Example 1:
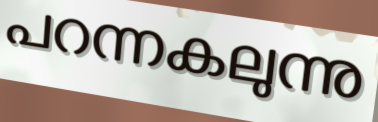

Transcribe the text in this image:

പറന്നകലുന്നു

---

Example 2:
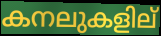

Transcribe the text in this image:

കനലുകളില്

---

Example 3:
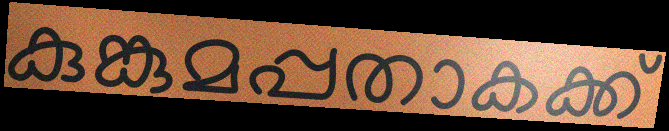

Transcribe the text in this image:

കുങ്കുമപ്പതാകക്ക്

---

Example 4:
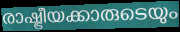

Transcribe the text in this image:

രാഷ്ട്രീയക്കാരുടെയും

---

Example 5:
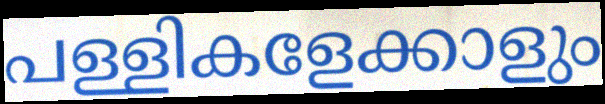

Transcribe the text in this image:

പള്ളികളേക്കാളും